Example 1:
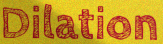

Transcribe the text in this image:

Dilation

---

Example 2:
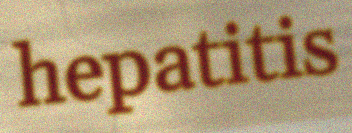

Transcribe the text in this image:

hepatitis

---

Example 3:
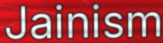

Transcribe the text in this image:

Jainism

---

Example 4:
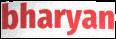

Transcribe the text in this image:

bharyan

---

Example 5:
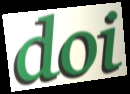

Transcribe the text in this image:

doi